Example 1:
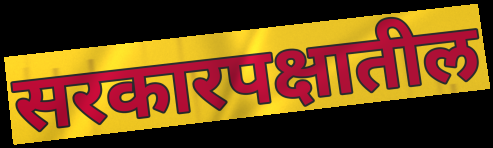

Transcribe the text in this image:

सरकारपक्षातील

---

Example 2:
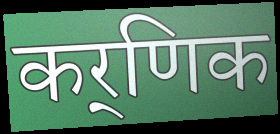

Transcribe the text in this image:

कर्णिक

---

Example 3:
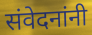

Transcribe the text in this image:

संवेदनांनी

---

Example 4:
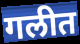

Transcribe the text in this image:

गलीत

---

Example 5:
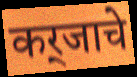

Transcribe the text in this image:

कर्जाचे